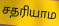
சதரியாம